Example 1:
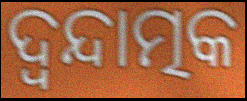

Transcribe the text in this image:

ଦ୍ୱନ୍ଦାତ୍ମକ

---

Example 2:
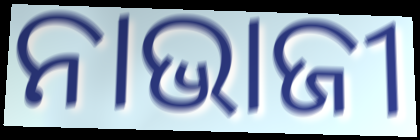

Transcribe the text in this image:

ନାଭାଜୀ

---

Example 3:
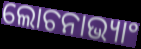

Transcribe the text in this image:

ଲୋଚନାଭ୍ୟାଂ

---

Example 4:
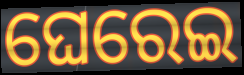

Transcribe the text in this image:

ଘେରେଇ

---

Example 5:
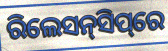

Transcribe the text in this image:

ରିଲେସନ୍‌ସିପ୍‌ରେ